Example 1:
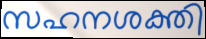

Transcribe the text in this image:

സഹനശക്തി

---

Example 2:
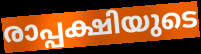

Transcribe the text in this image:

രാപ്പക്ഷിയുടെ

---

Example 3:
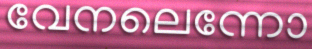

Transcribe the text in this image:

വേനലെന്നോ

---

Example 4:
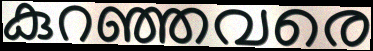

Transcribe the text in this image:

കുറഞ്ഞവരെ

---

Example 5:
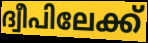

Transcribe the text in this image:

ദ്വീപിലേക്ക്